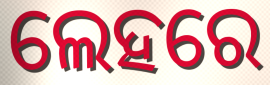
ଲେହରେ